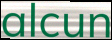
alcun